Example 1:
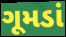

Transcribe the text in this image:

ગૂમડાં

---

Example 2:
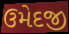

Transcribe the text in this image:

ઉમેદજી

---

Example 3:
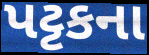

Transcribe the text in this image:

પટ્ટકના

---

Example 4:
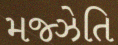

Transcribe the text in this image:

મજ્ઝેતિ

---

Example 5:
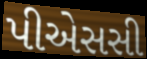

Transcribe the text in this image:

પીએસસી